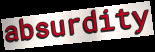
absurdity